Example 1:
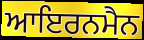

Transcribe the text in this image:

ਆਇਰਨਮੈਨ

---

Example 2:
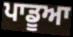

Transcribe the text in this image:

ਪਾਡੂਆ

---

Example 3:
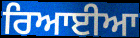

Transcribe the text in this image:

ਰਿਆਈਆ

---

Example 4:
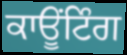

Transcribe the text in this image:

ਕਾਊਂਟਿੰਗ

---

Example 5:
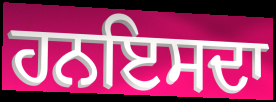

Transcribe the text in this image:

ਹਨਇਸਦਾ